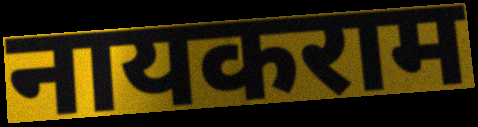
नायकराम